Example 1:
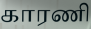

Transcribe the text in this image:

காரணி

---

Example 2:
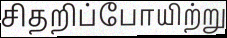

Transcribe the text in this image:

சிதறிப்போயிற்று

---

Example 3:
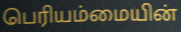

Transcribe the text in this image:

பெரியம்மையின்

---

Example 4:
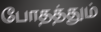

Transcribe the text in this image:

போதத்தும்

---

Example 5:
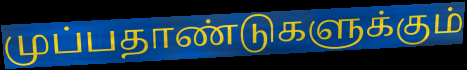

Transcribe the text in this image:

முப்பதாண்டுகளுக்கும்